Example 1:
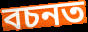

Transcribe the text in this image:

বচনত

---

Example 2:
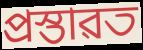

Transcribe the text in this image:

প্ৰস্তাৱত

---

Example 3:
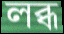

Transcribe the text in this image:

লব্ধ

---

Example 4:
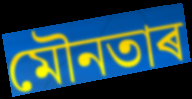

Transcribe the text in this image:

মৌনতাৰ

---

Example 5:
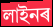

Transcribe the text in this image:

লাইনৰ